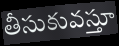
తీసుకువస్తూ